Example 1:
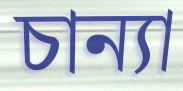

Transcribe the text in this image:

চান্যা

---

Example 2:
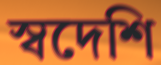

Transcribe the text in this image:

স্বদেশি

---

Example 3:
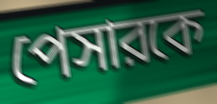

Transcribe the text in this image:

পেসারকে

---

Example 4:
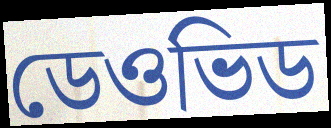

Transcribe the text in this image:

ডেওভিড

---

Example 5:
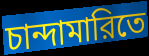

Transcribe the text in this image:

চান্দামারিতে